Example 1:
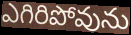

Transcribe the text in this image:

ఎగిరిపోవును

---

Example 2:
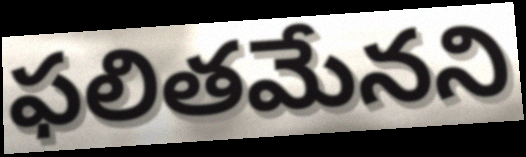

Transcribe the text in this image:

ఫలితమేనని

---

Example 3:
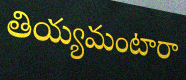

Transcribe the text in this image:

తియ్యమంటారా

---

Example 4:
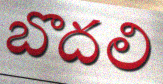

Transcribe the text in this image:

బొదలి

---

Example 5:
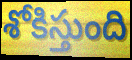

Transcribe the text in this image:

శోకిస్తుంది